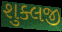
શુક્લજી